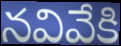
నవివేకి